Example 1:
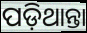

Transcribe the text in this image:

ପଡ଼ିଥାନ୍ତା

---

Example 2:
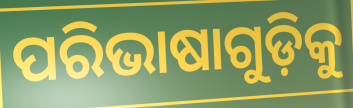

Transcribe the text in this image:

ପରିଭାଷାଗୁଡ଼ିକୁ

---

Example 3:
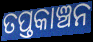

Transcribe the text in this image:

ତପ୍ତକାଞ୍ଚନ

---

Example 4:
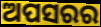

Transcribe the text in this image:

ଅପସରର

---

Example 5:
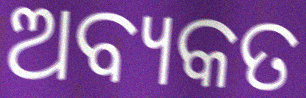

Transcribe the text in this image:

ଅବ୍ୟକତ